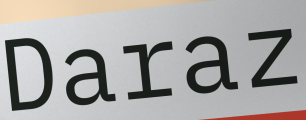
Daraz